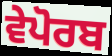
ਵੇਪੋਰਬ